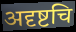
अदृष्टचि